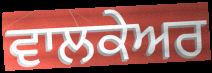
ਵਾਲਕੇਅਰ